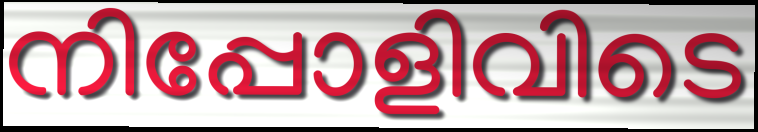
നിപ്പോളിവിടെ